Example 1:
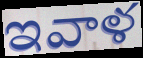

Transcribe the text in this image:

ఇవాళ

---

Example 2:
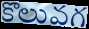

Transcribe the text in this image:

కొలువగ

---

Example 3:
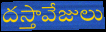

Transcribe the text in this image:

దస్తావేజులు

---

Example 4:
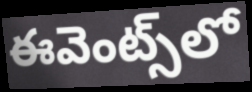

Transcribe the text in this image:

ఈవెంట్స్‌లో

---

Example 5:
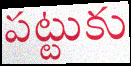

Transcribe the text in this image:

పట్టుకు